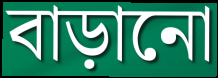
বাড়ানো